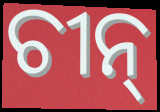
ଚୀନ୍